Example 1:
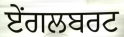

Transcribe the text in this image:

ਏਂਗਲਬਰਟ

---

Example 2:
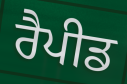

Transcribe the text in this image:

ਰੈਪੀਡ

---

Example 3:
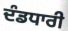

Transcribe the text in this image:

ਦੰਡਧਾਰੀ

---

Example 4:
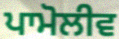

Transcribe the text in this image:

ਪਾਮੋਲੀਵ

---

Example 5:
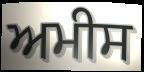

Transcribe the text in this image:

ਅਮੀਸ